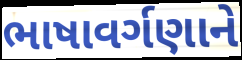
ભાષાવર્ગણાને